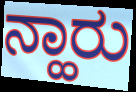
ನ್ಹಾರು